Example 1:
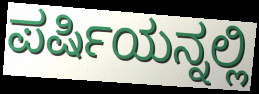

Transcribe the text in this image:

ಪರ್ಷಿಯನ್ನಲ್ಲಿ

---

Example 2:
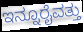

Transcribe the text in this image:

ಇನ್ನೂರೈವತ್ತು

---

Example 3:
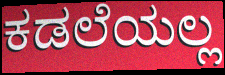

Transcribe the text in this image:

ಕಡಲೆಯಲ್ಲ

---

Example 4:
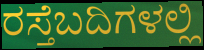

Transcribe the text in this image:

ರಸ್ತೆಬದಿಗಳಲ್ಲಿ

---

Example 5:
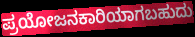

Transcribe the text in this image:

ಪ್ರಯೋಜನಕಾರಿಯಾಗಬಹುದು